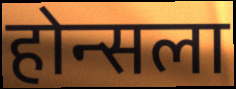
होन्सला